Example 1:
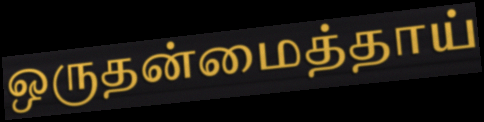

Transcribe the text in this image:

ஒருதன்மைத்தாய்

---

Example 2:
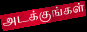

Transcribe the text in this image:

அடக்குங்கள்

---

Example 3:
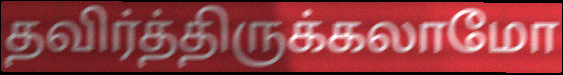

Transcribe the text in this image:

தவிர்த்திருக்கலாமோ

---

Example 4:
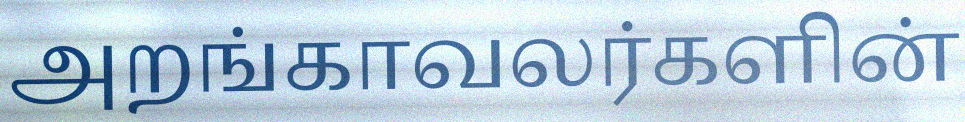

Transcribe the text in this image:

அறங்காவலர்களின்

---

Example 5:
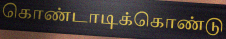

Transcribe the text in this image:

கொண்டாடிக்கொண்டு